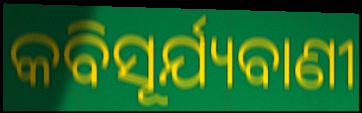
କବିସୂର୍ଯ୍ୟବାଣୀ